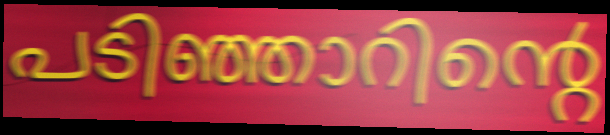
പടിഞ്ഞാറിന്റെ